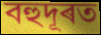
বহুদূৰত